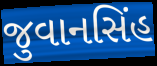
જુવાનસિંહ